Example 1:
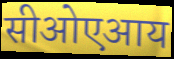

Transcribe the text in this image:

सीओएआय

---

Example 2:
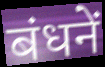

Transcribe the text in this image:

बंधनें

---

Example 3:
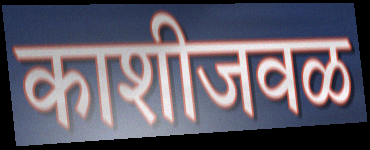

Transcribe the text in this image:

काशीजवळ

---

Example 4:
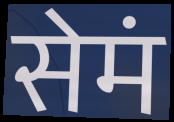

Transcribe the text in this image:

सेमं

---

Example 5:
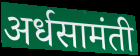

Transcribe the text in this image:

अर्धसामंती